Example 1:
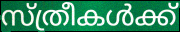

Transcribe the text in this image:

സ്ത്രീകൾക്ക്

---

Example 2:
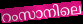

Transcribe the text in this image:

റംസാനിലെ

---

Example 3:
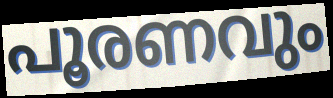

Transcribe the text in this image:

പൂരണവും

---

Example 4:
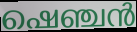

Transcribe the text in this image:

ഷെഞ്ചൻ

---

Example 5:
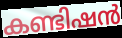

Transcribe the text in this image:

കണ്ടിഷൻ